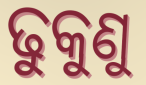
ଢୁକୁଣୁ